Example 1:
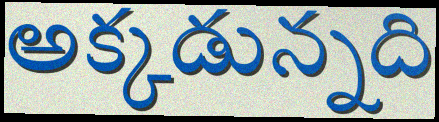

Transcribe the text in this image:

అక్కడున్నది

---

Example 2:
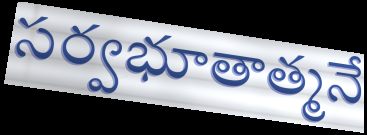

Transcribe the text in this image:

సర్వభూతాత్మనే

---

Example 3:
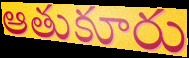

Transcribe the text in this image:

ఆతుకూరు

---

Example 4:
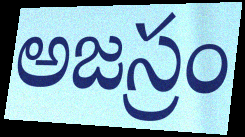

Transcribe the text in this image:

అజస్రం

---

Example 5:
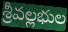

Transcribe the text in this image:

శ్రీవల్లభుల